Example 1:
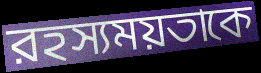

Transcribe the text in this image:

রহস্যময়তাকে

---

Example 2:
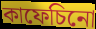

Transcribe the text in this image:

কাফেচিনো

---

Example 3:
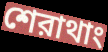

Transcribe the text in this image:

শেরাথাং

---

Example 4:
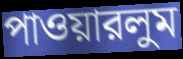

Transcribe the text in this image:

পাওয়ারলুম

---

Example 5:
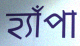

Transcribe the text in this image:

হ্যাঁপা